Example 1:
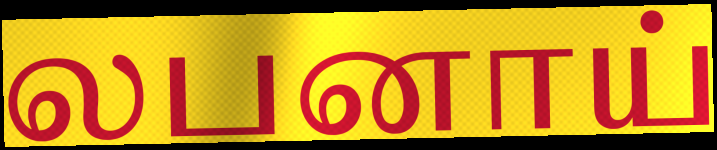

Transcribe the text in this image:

லபனாய்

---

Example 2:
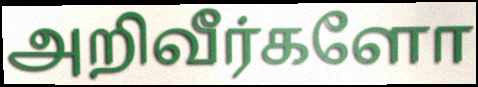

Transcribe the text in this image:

அறிவீர்களோ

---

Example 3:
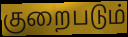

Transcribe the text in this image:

குறைபடும்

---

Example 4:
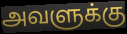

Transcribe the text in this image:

அவளுக்கு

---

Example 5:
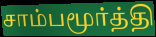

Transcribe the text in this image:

சாம்பமூர்த்தி